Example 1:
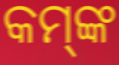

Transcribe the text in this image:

କମ୍‌ଙ୍କ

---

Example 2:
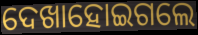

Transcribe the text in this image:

ଦେଖାହୋଇଗଲେ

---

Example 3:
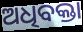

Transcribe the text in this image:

ଅଧିବକ୍ତା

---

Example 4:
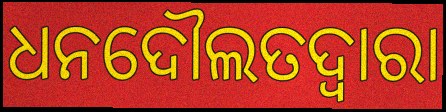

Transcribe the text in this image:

ଧନଦୌଲତଦ୍ଵାରା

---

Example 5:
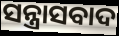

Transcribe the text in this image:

ସନ୍ତ୍ରାସବାଦ